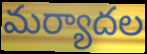
మర్యాదల